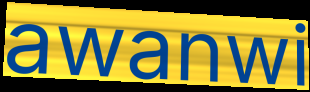
awanwi